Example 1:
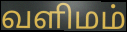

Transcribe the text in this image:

வளிமம்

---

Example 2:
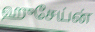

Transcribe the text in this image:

ஹுசேய்ன்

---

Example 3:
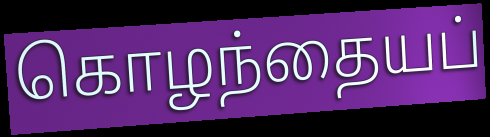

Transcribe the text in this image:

கொழந்தையப்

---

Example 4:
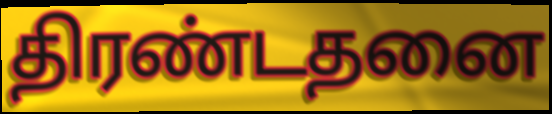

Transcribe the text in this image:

திரண்டதனை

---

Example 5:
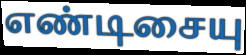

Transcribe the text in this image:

எண்டிசையு